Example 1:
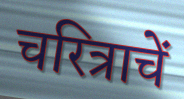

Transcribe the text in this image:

चरित्राचें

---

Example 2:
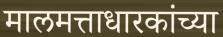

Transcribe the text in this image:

मालमत्ताधारकांच्या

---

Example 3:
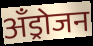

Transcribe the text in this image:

अँड्रोजन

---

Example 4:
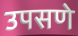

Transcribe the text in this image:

उपसणे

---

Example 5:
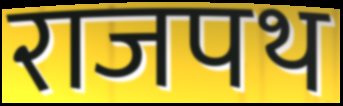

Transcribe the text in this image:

राजपथ